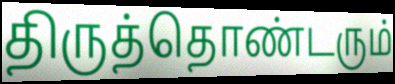
திருத்தொண்டரும்